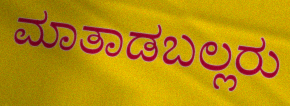
ಮಾತಾಡಬಲ್ಲರು